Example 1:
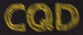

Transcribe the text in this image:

CQD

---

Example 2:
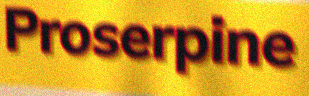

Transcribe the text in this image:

Proserpine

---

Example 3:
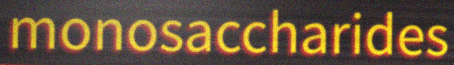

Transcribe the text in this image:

monosaccharides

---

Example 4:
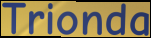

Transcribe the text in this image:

Trionda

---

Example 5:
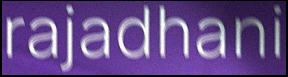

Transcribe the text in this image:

rajadhani